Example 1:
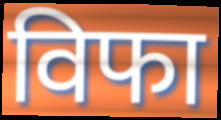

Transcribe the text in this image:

विफा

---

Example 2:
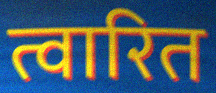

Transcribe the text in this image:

त्वारित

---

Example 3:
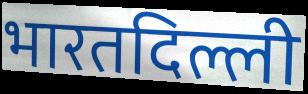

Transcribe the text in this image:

भारतदिल्ली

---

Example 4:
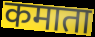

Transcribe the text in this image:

कमाता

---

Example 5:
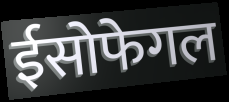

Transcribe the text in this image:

ईसोफेगल